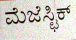
ಮೆಜೆಸ್ಟಿಕ್